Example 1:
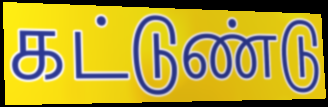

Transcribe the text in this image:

கட்டுண்டு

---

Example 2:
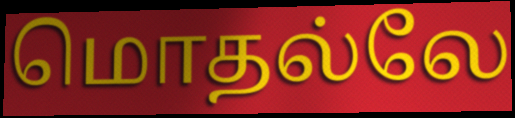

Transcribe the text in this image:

மொதல்லே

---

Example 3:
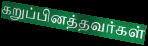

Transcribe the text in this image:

கறுப்பினத்தவர்கள்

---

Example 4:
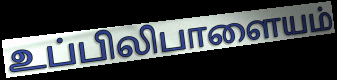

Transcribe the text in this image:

உப்பிலிபாளையம்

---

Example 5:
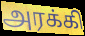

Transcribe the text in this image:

அரக்கி